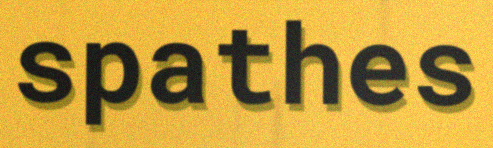
spathes